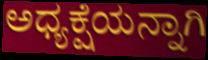
ಅಧ್ಯಕ್ಷೆಯನ್ನಾಗಿ